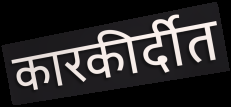
कारकीर्दीत